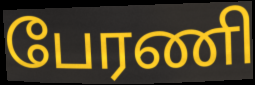
பேரணி